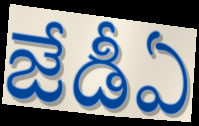
జేడీఏ